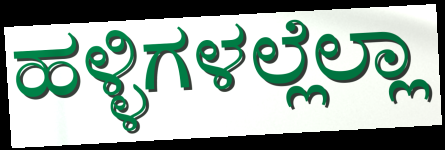
ಹಳ್ಳಿಗಳಲ್ಲೆಲ್ಲಾ